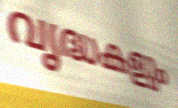
വൃദ്ധകളും